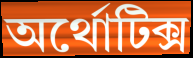
অর্থোটিক্স